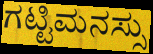
ಗಟ್ಟಿಮನಸ್ಸು